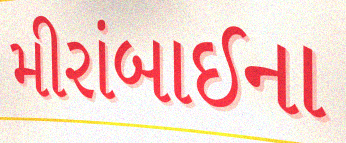
મીરાંબાઈના